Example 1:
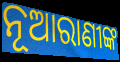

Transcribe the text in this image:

ନୂଆରାଣୀଙ୍କ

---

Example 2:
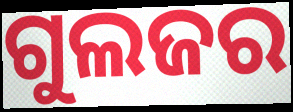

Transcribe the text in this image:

ଗୁଲଜର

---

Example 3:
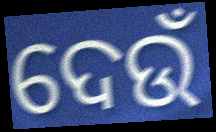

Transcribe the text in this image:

ଦେଉଁ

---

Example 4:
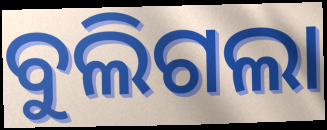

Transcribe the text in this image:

ବୁଲିଗଲା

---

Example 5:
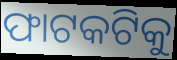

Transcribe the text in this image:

ଫାଟକଟିକୁ